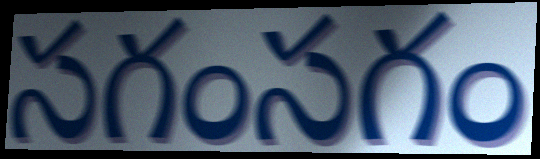
సగంసగం